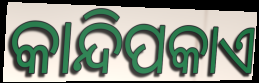
କାନ୍ଦିପକାଏ